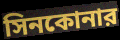
সিনকোনার